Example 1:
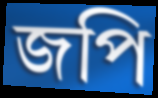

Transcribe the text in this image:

জপি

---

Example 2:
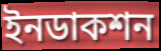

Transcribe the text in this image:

ইনডাকশন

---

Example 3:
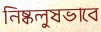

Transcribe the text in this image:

নিষ্কলুষভাবে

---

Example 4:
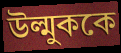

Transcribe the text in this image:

উল্মুককে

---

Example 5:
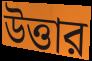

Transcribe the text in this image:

উত্তার